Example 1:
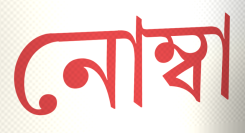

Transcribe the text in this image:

নোম্বা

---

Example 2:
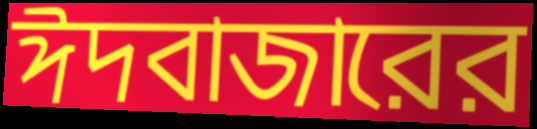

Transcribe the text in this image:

ঈদবাজারের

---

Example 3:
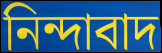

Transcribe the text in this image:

নিন্দাবাদ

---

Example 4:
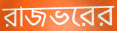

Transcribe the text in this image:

রাজভরের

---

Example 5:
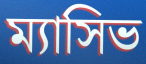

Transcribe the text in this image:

ম্যাসিভ